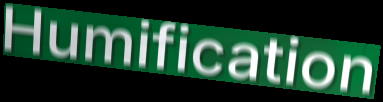
Humification